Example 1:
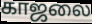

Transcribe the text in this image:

காஜலை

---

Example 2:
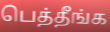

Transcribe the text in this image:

பெத்தீங்க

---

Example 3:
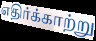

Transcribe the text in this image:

எதிர்க்காற்று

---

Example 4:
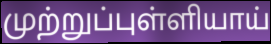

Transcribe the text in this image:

முற்றுப்புள்ளியாய்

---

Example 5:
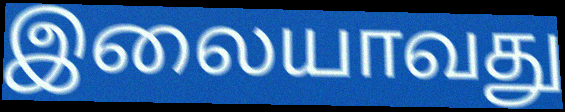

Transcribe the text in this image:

இலையாவது